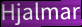
Hjalmar